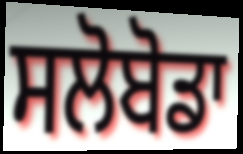
ਸਲੋਬੋਡਾ